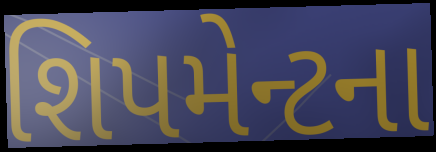
શિપમેન્ટના